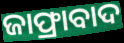
ଜାଫ୍ରାବାଦ